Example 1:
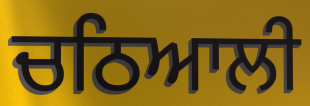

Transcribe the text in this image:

ਚਠਿਆਲੀ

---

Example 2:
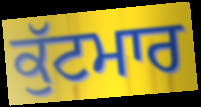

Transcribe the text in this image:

ਕੁੱਟਮਾਰ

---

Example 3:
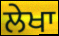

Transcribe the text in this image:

ਲੇਖਾ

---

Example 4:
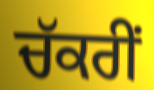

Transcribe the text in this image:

ਚੱਕਰੀਂ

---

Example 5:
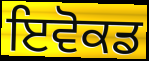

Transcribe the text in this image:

ਇਵੋਕਡ